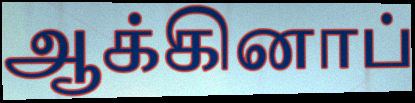
ஆக்கினாப்